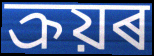
ক্ৰয়ৰ